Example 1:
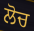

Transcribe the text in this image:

ਲੋਚ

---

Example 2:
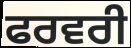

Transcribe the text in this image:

ਫਰਵਰੀ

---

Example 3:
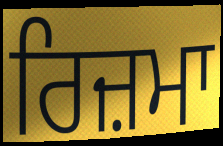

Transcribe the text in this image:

ਰਿਜ਼ਮਾ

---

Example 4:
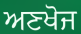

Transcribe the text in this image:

ਅਣਖੋਜ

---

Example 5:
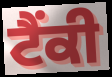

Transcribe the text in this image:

ਟੈਂਕੀ